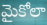
మైకోలా